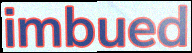
imbued